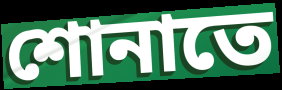
শোনাতে